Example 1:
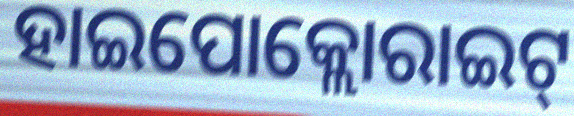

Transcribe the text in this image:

ହାଇପୋକ୍ଲୋରାଇଟ୍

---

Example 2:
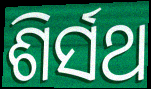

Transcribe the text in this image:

ଶିର୍ସଥ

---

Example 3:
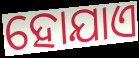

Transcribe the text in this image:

ହୋଯାଏ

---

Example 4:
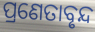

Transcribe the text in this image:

ପ୍ରଣେତାବୃନ୍ଦ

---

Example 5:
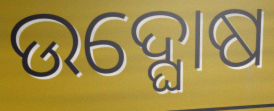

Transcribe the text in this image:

ଉଦ୍ଘୋଷ